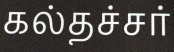
கல்தச்சர்